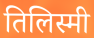
तिलिस्मी